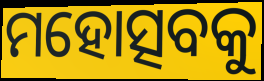
ମହୋତ୍ସବକୁ